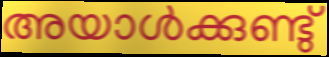
അയാൾക്കുണ്ടു്